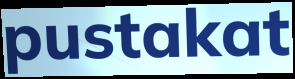
pustakat